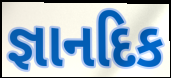
જ્ઞાનદિક